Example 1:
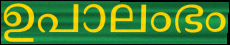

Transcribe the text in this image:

ഉപാലംഭം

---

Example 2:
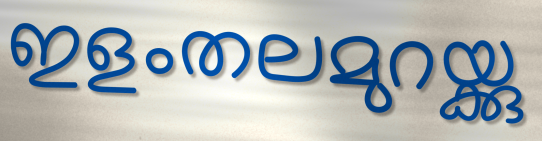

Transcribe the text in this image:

ഇളംതലമുറയ്ക്കു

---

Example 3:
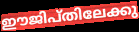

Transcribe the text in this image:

ഈജിപ്തിലേക്കു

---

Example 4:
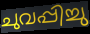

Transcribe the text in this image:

ചുവപ്പിച്ചു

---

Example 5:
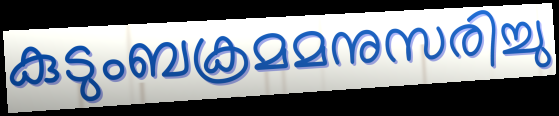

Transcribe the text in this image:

കുടുംബക്രമമനുസരിച്ചു